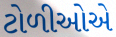
ટોળીઓએ